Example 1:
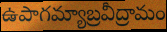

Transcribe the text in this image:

ఉపాగమ్యాబ్రవీద్రామం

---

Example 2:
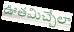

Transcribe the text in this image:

ఊతమిచ్చేలా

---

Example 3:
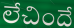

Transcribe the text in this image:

లేచిందే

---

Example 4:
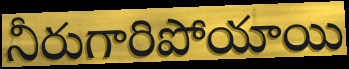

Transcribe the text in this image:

నీరుగారిపోయాయి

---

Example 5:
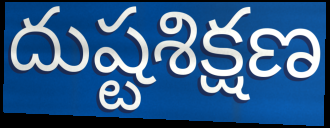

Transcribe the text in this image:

దుష్టశిక్షణ